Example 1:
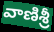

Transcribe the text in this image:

వాణిశ్రీ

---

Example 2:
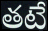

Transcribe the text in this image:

తటే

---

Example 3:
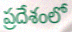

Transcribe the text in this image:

ప్రదేశంలో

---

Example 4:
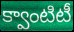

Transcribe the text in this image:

క్వాంటిటీ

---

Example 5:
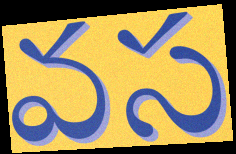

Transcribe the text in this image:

వస